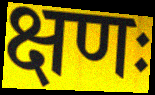
क्षणः